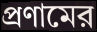
প্রণামের